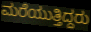
ಮರೆಯುತ್ತಿದ್ದರು